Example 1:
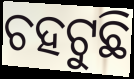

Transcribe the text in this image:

ଚହଟୁଛି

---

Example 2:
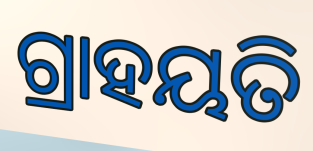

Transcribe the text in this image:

ଗ୍ରାହୟତି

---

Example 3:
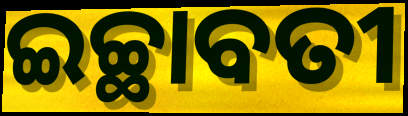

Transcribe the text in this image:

ଇଚ୍ଛାବତୀ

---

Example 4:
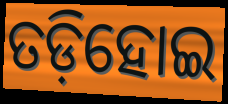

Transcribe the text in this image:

ତଡ଼ିହୋଇ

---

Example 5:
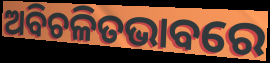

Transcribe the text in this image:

ଅବିଚଳିତଭାବରେ